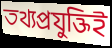
তথ্যপ্রযুক্তিই